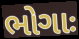
ભોગાઃ